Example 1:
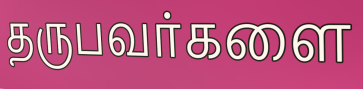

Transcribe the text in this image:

தருபவர்களை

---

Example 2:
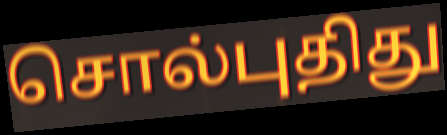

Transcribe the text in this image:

சொல்புதிது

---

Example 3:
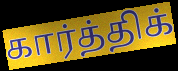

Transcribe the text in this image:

கார்த்திக்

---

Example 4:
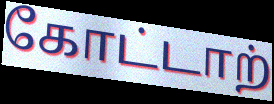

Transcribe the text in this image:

கோட்டாற்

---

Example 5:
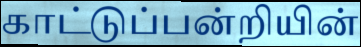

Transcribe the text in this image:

காட்டுப்பன்றியின்